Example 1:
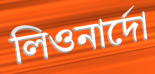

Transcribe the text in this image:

লিওনার্দো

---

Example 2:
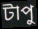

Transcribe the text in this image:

টাপু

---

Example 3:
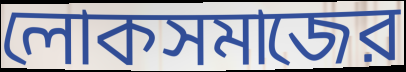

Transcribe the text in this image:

লোকসমাজের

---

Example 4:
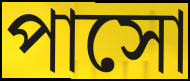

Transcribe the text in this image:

পাসো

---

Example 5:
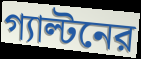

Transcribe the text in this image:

গ্যাল্টনের